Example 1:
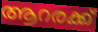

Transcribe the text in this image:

ആറരക്ക്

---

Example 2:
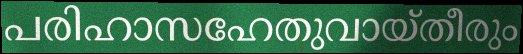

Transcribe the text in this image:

പരിഹാസഹേതുവായ്തീരും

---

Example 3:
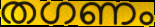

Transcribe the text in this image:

തഗണം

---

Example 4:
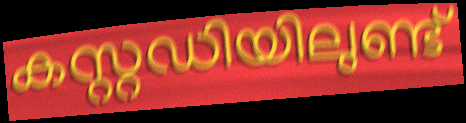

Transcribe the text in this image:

കസ്റ്റഡിയിലുണ്ട്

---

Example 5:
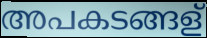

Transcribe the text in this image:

അപകടങ്ങള്